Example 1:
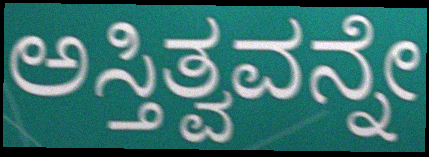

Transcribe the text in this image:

ಅಸ್ತಿತ್ವವನ್ನೇ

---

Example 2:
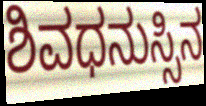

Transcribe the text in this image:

ಶಿವಧನುಸ್ಸಿನ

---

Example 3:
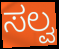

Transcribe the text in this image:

ಸಲ್ವ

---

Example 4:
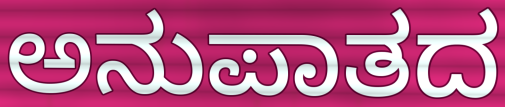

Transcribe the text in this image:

ಅನುಪಾತದ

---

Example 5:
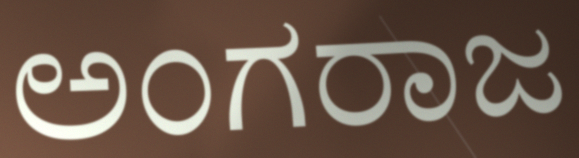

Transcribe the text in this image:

ಅಂಗರಾಜ